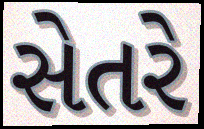
સેતરે